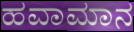
ಹವಾಮಾನ